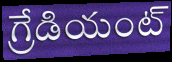
గ్రేడియంట్